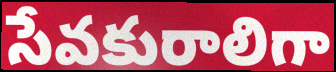
సేవకురాలిగా